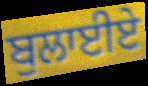
ਬੁਲਾਈਏ